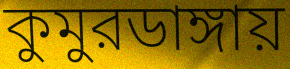
কুমুরডাঙ্গায়